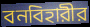
বনবিহারীর